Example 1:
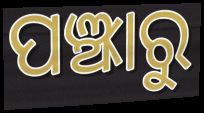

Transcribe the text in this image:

ପଞ୍ଝାରୁ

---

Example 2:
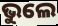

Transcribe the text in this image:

ଭୁଲେ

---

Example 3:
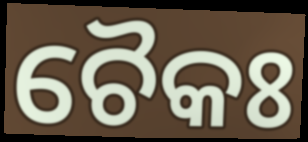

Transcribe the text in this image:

ଚୈକଃ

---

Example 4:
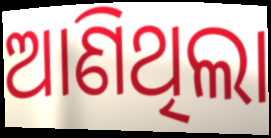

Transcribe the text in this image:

ଆଣିଥିଲା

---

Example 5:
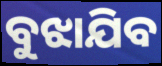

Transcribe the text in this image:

ବୁଝାଯିବ